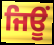
ਜਿਊਂ